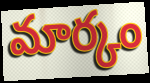
మార్కం